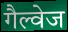
गैल्वेज